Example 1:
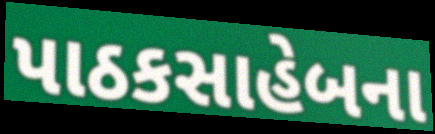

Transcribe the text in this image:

પાઠકસાહેબના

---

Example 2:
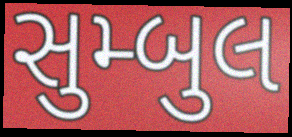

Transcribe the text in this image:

સુમ્બુલ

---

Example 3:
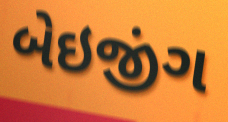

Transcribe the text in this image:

બેઇજીંગ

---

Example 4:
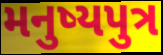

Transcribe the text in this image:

મનુષ્યપુત્ર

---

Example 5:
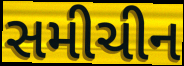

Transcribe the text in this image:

સમીચીન